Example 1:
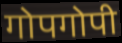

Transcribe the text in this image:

गोपगोपी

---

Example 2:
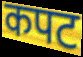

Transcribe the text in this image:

कपट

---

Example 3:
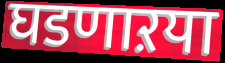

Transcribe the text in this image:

घडणाऱया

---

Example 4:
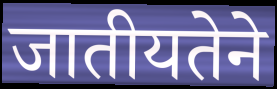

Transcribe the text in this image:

जातीयतेने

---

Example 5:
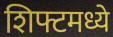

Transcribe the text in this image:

शिफ्टमध्ये